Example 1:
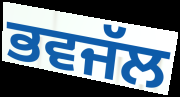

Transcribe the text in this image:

ਭਵਜੱਲ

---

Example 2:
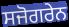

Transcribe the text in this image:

ਸਜੋਗਰੇਨ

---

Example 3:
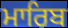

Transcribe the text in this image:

ਮਾਰਿਬ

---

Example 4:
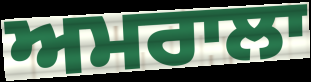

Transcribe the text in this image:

ਅਮਰਾਲਾ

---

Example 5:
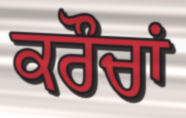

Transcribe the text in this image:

ਕਰੌਚਾਂ